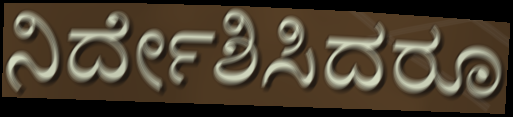
ನಿರ್ದೇಶಿಸಿದರೂ